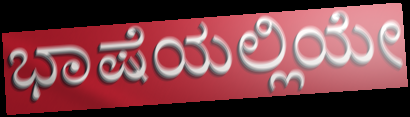
ಭಾಷೆಯಲ್ಲಿಯೇ